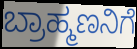
ಬ್ರಾಹ್ಮಣನಿಗೆ